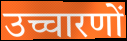
उच्चारणों